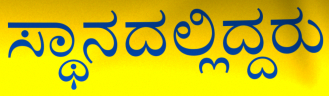
ಸ್ಥಾನದಲ್ಲಿದ್ದರು